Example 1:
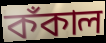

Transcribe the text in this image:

কঁকাল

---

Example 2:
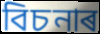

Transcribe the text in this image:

বিচনাৰ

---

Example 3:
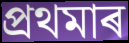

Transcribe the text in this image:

প্ৰথমাৰ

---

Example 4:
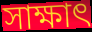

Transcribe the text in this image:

সাক্ষাৎ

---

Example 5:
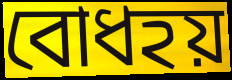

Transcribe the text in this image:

বোধহয়